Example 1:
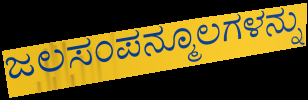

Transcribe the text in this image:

ಜಲಸಂಪನ್ಮೂಲಗಳನ್ನು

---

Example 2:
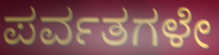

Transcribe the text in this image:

ಪರ್ವತಗಳೇ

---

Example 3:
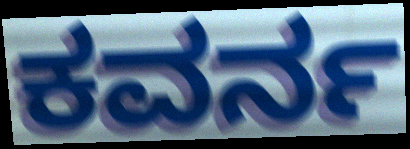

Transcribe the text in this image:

ಕವರ್ನ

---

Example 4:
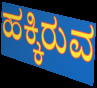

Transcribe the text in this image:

ಹಕ್ಕಿರುವ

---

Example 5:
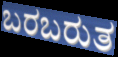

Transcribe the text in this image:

ಬರಬರುತ